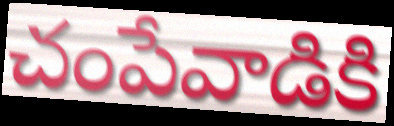
చంపేవాడికి